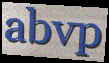
abvp